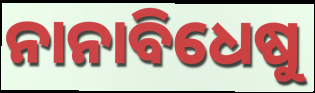
ନାନାବିଧେଷୁ